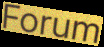
Forum